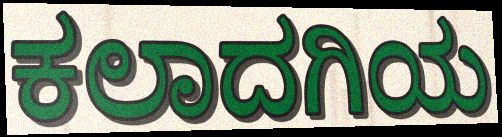
ಕಲಾದಗಿಯ